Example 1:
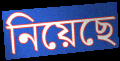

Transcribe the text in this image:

নিয়েছে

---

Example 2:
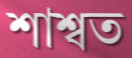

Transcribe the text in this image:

শাশ্বত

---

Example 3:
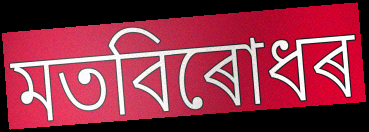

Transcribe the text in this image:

মতবিৰোধৰ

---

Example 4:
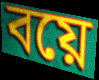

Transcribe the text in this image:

বয়ে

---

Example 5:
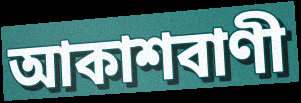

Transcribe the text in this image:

আকাশবাণী